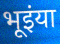
भूइंया